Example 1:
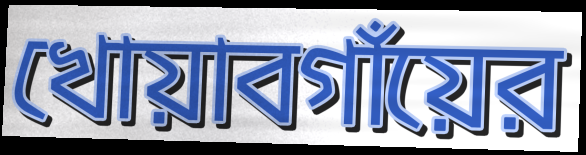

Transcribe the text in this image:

খোয়াবগাঁয়ের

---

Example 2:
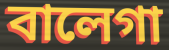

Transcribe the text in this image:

বালেগা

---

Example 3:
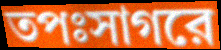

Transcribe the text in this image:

তপঃসাগরে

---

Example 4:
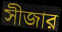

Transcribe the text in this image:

সীজার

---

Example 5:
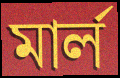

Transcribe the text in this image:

মার্ল